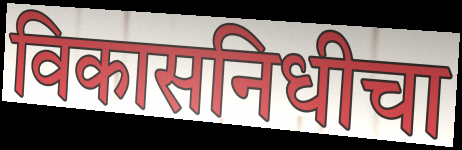
विकासनिधीचा